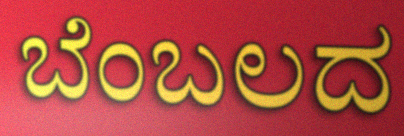
ಬೆಂಬಲದ